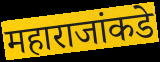
महाराजांकडे